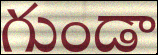
గుండా